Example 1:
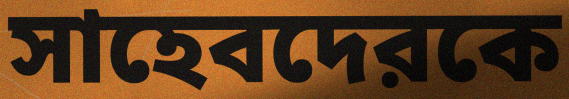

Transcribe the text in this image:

সাহেবদেরকে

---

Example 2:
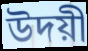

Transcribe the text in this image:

উদয়ী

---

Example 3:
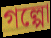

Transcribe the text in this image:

গল্পো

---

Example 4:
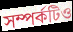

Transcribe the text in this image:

সম্পর্কটিও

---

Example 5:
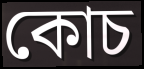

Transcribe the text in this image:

কোচ